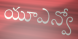
యూఎన్వో